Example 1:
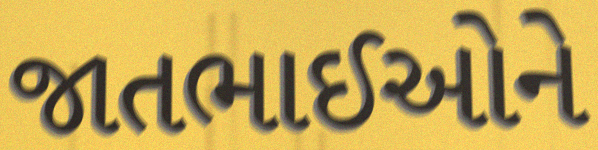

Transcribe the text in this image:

જાતભાઈઓને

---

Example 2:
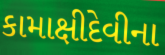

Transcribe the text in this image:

કામાક્ષીદેવીના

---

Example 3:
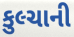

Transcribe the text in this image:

કુલ્ચાની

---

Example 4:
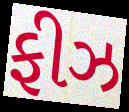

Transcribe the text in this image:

ફીઝ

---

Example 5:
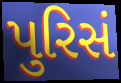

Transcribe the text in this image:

પુરિસં